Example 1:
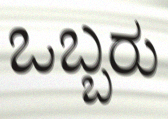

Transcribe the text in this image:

ಒಬ್ಬರು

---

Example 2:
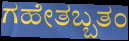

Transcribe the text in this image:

ಗಹೇತಬ್ಬತಂ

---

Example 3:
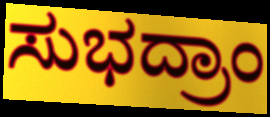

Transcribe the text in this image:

ಸುಭದ್ರಾಂ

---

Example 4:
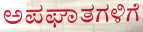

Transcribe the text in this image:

ಅಪಘಾತಗಳಿಗೆ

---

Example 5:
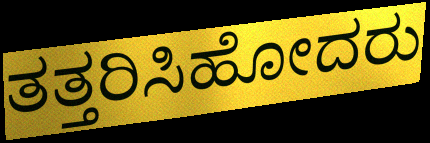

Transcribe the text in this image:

ತತ್ತರಿಸಿಹೋದರು